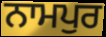
ਨਾਮਪੁਰ